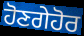
ਹੋਣਗੇਹੋਰ